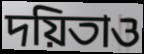
দয়িতাও